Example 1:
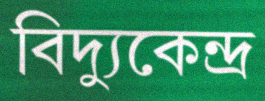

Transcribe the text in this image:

বিদ্যুকেন্দ্র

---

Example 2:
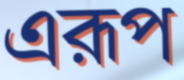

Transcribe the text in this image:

এরূপ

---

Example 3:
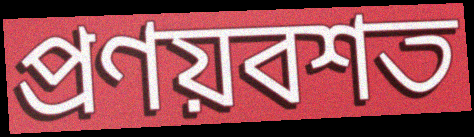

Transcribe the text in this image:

প্রণয়বশত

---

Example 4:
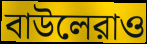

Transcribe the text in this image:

বাউলেরাও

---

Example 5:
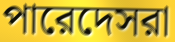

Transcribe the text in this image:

পারেদেসরা